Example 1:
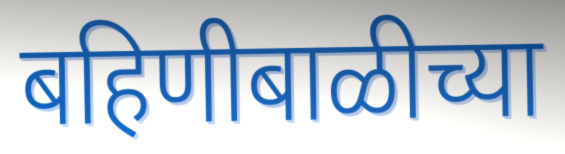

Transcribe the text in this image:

बहिणीबाळीच्या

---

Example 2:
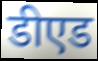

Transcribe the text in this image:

डीएड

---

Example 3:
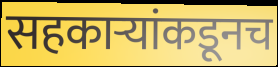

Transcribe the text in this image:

सहकार्‍यांकडूनच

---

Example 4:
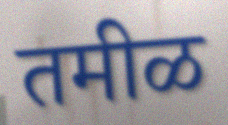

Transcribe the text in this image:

तमीळ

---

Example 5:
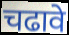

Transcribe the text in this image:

चढावे